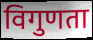
विगुणता